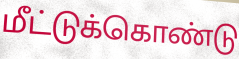
மீட்டுக்கொண்டு